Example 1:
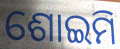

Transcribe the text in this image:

ଶୋଇମି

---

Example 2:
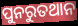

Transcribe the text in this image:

ପୁନରୁତଥାନ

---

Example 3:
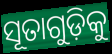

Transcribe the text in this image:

ସୂତାଗୁଡ଼ିକୁ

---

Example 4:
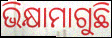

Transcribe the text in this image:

ଭିକ୍ଷାମାଗୁଛି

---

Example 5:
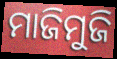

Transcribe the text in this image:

ମାଜିମୁଜି